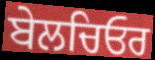
ਬੇਲਚਿਓਰ